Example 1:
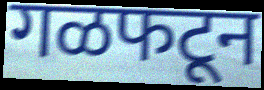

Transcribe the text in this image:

गळफटून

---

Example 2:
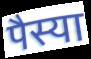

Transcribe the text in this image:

पैस्या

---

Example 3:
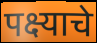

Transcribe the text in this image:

पक्ष्याचे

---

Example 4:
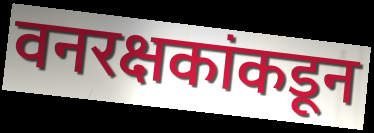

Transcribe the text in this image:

वनरक्षकांकडून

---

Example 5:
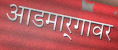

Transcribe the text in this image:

आडमार्गावर